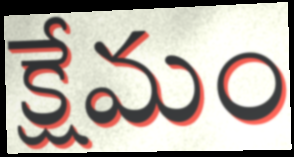
క్షేమం